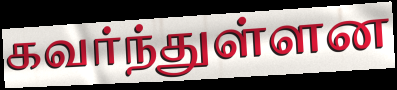
கவர்ந்துள்ளன